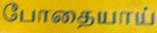
போதையாய்